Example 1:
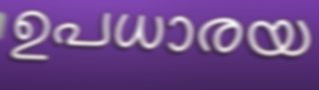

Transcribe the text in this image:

ഉപധാരയ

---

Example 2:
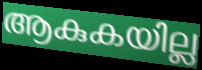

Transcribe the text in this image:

ആകുകയില്ല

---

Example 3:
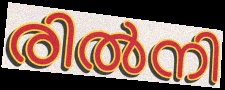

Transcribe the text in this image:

രിൽനി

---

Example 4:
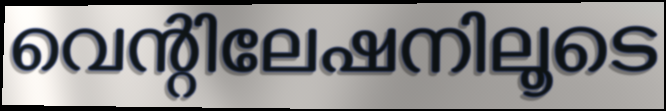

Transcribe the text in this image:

വെന്റിലേഷനിലൂടെ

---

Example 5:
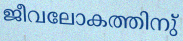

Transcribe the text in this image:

ജീവലോകത്തിനു്